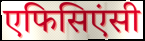
एफिसिएंसी